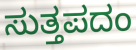
ಸುತ್ತಪದಂ